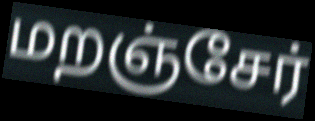
மறஞ்சேர்